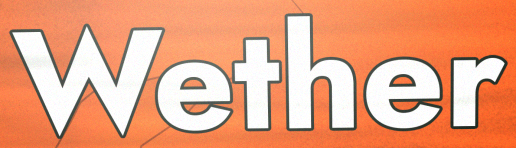
Wether